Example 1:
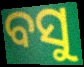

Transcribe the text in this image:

ବସୁ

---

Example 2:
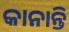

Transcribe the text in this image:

କାନାନ୍ତି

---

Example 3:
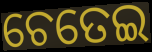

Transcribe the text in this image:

ଚେତେଇ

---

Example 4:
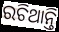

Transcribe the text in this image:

ରଚିଥାନ୍ତି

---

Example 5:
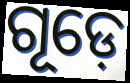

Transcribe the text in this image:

ଗୂଡ଼େ